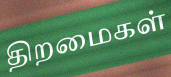
திறமைகள்